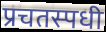
प्रचतस्पधी